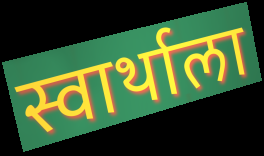
स्वार्थाला